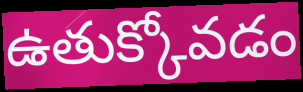
ఉతుక్కోవడం